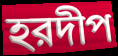
হরদীপ